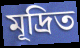
মূদ্রিত